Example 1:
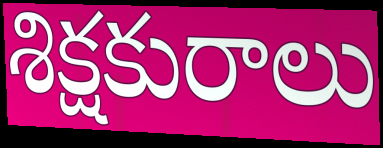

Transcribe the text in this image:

శిక్షకురాలు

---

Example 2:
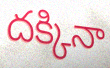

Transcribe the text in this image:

దక్కినా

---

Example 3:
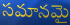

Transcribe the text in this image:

సమానమై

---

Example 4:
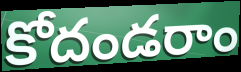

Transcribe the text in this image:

కోదండరాం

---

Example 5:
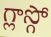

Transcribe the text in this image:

గ్లాస్గో